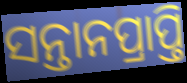
ସନ୍ତାନପ୍ରାପ୍ତି